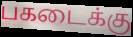
பகடைக்கு